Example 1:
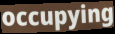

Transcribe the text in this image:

occupying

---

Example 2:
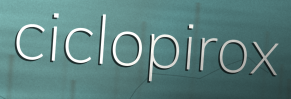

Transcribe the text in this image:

ciclopirox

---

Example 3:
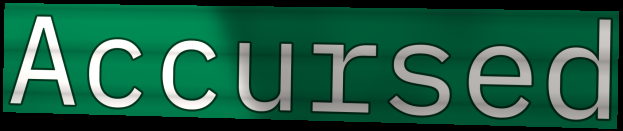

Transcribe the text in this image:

Accursed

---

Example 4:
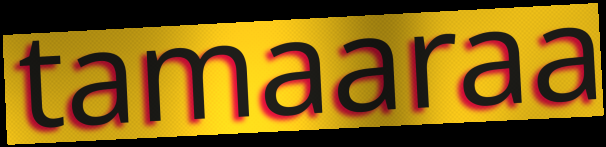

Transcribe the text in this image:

tamaaraa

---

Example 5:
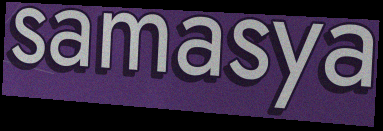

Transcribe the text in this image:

samasya